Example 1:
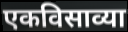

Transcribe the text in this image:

एकविसाव्या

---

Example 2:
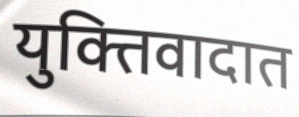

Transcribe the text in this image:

युक्तिवादात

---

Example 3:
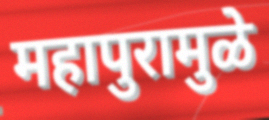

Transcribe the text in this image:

महापुरामुळे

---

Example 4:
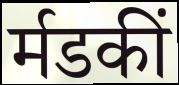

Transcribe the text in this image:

र्मडकीं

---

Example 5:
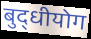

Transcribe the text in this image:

बुद्धीयोग